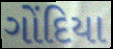
ગોંદિયા